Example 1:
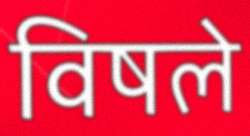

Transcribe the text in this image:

विषले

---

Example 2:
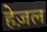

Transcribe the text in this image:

हेज़ल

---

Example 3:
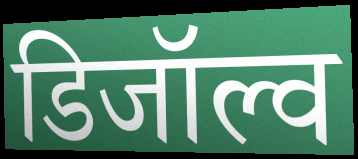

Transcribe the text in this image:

डिजॉल्व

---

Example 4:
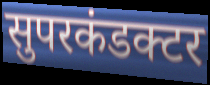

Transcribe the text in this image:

सुपरकंडक्टर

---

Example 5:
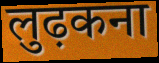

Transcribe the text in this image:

लुढ़कना